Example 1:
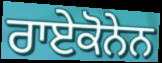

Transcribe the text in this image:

ਰਾਏਕੋਨੇਨ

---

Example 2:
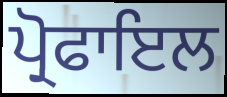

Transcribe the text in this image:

ਪ੍ਰੋਫਾਇਲ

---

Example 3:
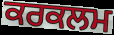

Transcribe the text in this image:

ਕਰਕਲਮ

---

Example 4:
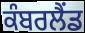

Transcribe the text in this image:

ਕੰਬਰਲੈਂਡ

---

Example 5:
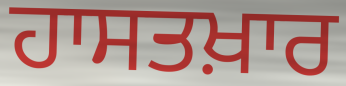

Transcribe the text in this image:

ਹਾਸਤਖ਼ਾਰ